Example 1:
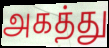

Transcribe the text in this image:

அகத்து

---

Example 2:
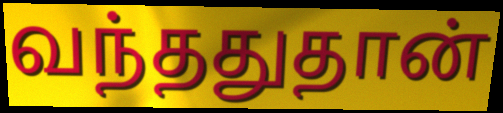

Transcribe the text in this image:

வந்ததுதான்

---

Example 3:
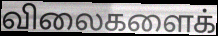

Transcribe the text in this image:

விலைகளைக்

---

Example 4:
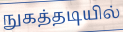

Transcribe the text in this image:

நுகத்தடியில்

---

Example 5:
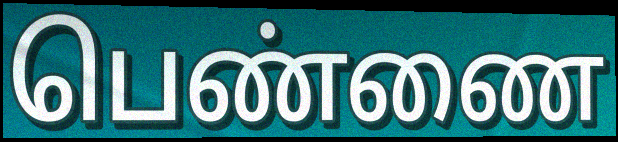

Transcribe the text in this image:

பெண்ணை